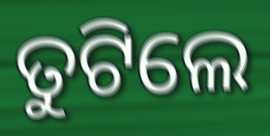
ତୁଟିଲେ